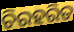
ଚିରହରିତ